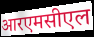
आरएमसीएल